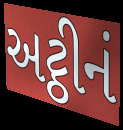
અટ્ઠીનં